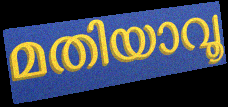
മതിയാവൂ